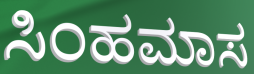
ಸಿಂಹಮಾಸ